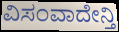
ವಿಸಂವಾದೇನ್ತಿ